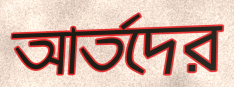
আর্তদের